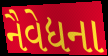
નૈવેદ્યના